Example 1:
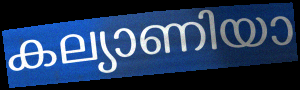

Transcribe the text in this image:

കല്യാണിയാ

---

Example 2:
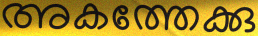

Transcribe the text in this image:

അകത്തേക്കു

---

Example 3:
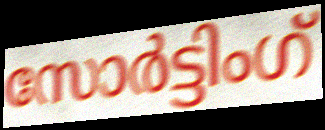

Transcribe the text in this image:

സോർട്ടിംഗ്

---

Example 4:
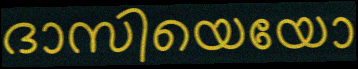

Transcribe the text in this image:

ദാസിയെയോ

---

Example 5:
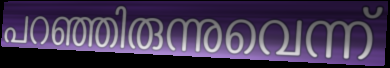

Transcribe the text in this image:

പറഞ്ഞിരുന്നുവെന്ന്